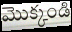
మొక్కండి